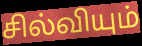
சில்வியும்